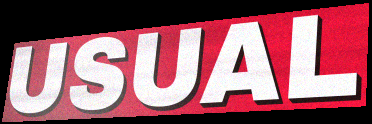
USUAL